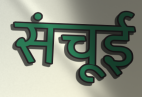
संचूई